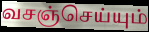
வசஞ்செய்யும்